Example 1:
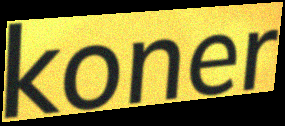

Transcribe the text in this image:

koner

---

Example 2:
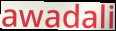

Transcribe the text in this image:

awadali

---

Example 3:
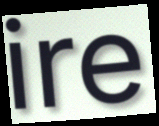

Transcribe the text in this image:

ire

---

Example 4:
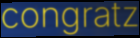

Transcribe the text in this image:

congratz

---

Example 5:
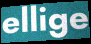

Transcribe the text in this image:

ellige